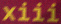
xiii